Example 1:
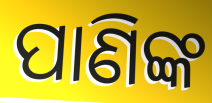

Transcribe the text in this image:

ପାଣିଙ୍କ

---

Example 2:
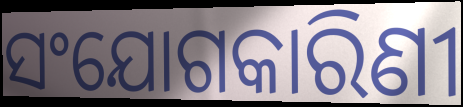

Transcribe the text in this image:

ସଂଯୋଗକାରିଣୀ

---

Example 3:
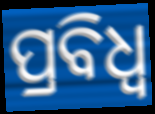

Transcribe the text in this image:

ପ୍ରବିଧ୍ଵ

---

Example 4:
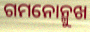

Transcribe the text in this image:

ଗମନୋନ୍ମୁଖ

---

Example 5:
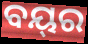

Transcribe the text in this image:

ବୟ୍‌ର